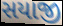
સયાજી